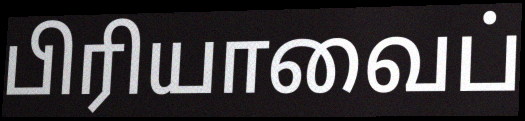
பிரியாவைப்